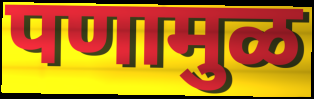
पणामुळ